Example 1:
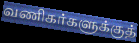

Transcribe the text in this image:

வணிகர்களுக்குத்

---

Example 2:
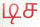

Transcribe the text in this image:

டிச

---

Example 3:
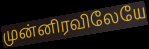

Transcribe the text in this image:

முன்னிரவிலேயே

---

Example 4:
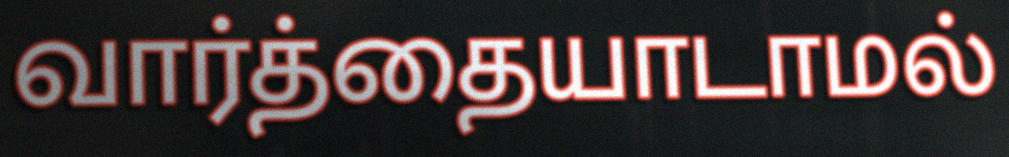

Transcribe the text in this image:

வார்த்தையாடாமல்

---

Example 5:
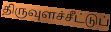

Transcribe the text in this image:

திருவுளச்சீட்டுப்